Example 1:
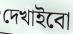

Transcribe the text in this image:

দেখাইবো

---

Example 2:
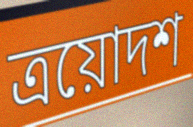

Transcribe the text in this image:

ত্রয়োদশ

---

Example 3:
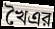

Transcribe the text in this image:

খৈএর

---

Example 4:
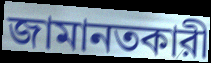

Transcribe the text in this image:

জামানতকারী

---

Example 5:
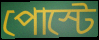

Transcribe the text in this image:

পোস্টে